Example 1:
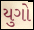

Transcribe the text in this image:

યુગો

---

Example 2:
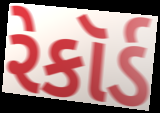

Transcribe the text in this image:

રેકૉર્ડ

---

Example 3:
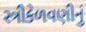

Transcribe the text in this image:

સ્ત્રીકેળવણીનું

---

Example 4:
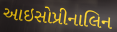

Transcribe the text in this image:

આઇસોપ્રીનાલિન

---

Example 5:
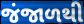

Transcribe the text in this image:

જંજાળથી